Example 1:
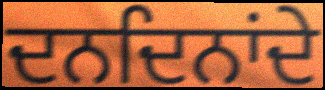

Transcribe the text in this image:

ਦਨਦਿਨਾਂਦੇ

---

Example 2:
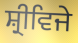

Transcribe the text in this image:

ਸ਼੍ਰੀਵਿਜੇ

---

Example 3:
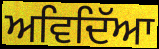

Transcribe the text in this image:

ਅਵਿਦਿੱਆ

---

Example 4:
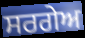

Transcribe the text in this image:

ਸਰਗੇਅ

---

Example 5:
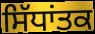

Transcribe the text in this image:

ਸਿੱਧਾਂਤਕ